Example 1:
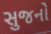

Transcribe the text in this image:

સુજનો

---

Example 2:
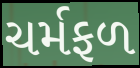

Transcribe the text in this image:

ચર્મફળ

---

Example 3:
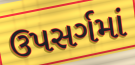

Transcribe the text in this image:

ઉપસર્ગમાં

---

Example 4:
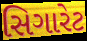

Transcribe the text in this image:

સિગારેટ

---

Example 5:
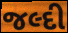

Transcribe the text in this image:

જલ્દી